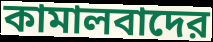
কামালবাদের